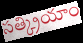
సత్క్రియాం